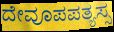
ದೇವೂಪಪತ್ಯಸ್ಸ